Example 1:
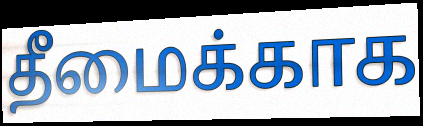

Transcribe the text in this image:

தீமைக்காக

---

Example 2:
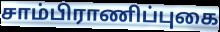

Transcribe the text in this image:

சாம்பிராணிப்புகை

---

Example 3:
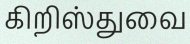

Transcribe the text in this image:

கிறிஸ்துவை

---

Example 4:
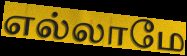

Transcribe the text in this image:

எல்லாமே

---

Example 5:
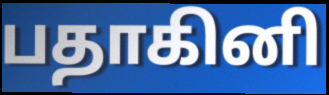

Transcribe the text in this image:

பதாகினி